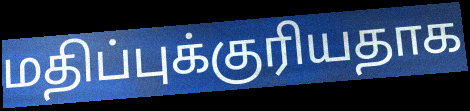
மதிப்புக்குரியதாக